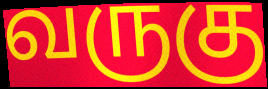
வருகு